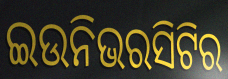
ଇଉନିଭରସିଟିର